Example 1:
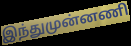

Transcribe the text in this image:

இந்துமுன்னணி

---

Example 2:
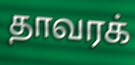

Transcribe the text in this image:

தாவரக்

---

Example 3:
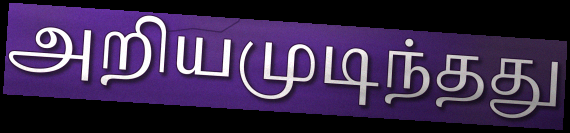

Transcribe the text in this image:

அறியமுடிந்தது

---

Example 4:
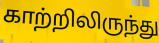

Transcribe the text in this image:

காற்றிலிருந்து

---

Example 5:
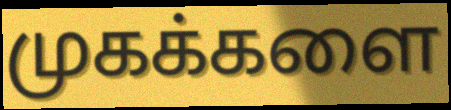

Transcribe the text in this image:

முகக்களை